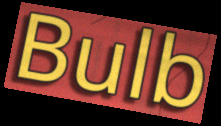
Bulb